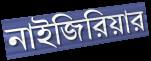
নাইজিরিয়ার